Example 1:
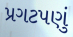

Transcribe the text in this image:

પ્રગટપણું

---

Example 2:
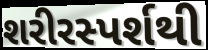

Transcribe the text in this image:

શરીરસ્પર્શથી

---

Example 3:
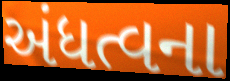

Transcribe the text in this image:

અંધત્વના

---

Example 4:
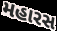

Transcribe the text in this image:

મહારસ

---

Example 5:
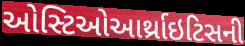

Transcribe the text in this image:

ઓસ્ટિઓઆર્થ્રાઇટિસની